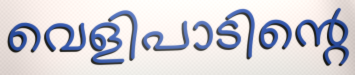
വെളിപാടിന്റെ